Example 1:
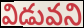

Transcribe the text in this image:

విడువని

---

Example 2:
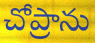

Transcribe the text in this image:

చోప్రాను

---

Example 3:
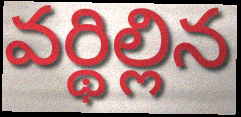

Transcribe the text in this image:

వర్థిల్లిన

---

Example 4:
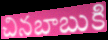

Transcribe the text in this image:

చినబాబుకి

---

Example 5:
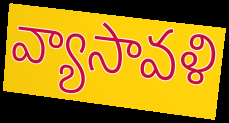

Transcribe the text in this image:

వ్యాసావళి